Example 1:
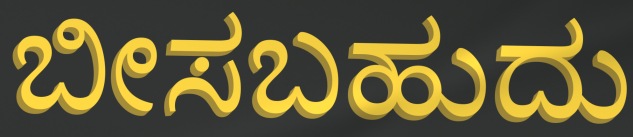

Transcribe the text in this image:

ಬೀಸಬಹುದು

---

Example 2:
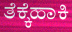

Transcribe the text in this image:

ತೆಕ್ಕೆಹಾಕಿ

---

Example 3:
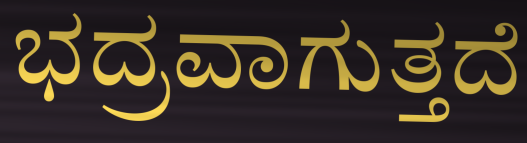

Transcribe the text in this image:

ಭದ್ರವಾಗುತ್ತದೆ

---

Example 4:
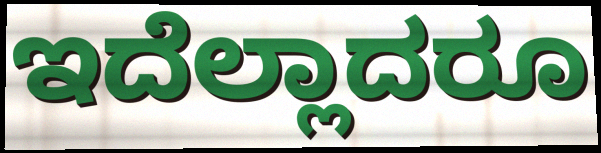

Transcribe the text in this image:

ಇದೆಲ್ಲಾದರೂ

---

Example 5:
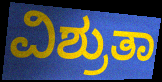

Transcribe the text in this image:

ವಿಶ್ರುತಾ